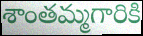
శాంతమ్మగారికి